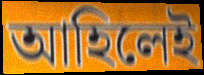
আহিলেই